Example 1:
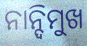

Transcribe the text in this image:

ନାନ୍ଦିମୁଖ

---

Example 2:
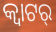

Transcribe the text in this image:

କ୍ୱାଟର୍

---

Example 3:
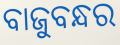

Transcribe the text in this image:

ବାଜୁବନ୍ଧର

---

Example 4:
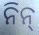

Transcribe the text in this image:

ନିନ୍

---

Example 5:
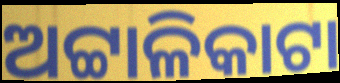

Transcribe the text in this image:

ଅଟ୍ଟାଳିକାଟା